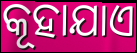
କୂହାଯାଏ